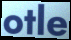
otle